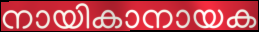
നായികാനായക